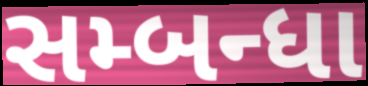
સમ્બન્ધા